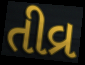
તીવ્ર